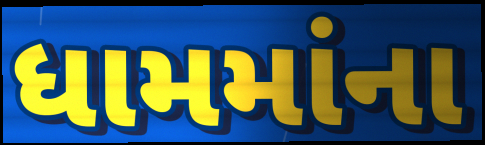
ધામમાંના